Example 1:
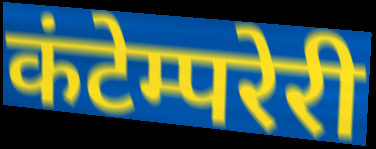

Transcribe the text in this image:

कंटेम्परेरी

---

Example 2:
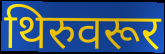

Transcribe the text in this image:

थिरुवरूर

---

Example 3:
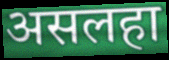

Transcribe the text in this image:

असलहा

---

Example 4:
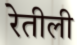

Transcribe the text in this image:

रेतीली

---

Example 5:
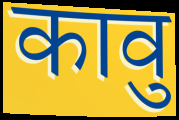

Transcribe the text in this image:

कावु